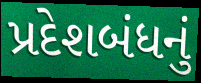
પ્રદેશબંધનું